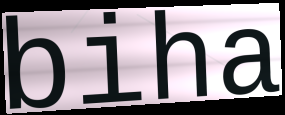
biha